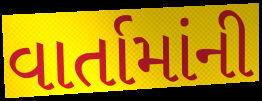
વાર્તામાંની